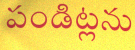
పండిట్లను